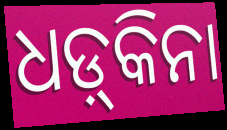
ଧଡ଼୍‍କିନା